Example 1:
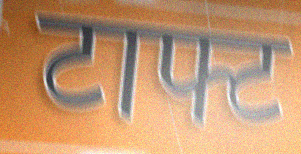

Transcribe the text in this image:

टाफ्ट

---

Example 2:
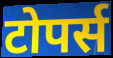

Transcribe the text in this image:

टोपर्स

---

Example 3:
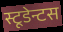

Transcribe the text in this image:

स्टूडेन्टस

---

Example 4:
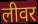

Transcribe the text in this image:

लीवर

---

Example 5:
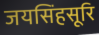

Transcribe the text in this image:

जयसिंहसूरि